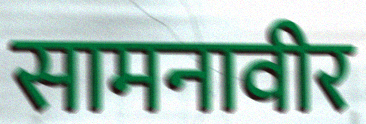
सामनावीर